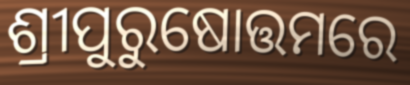
ଶ୍ରୀପୁରୁଷୋତ୍ତମରେ